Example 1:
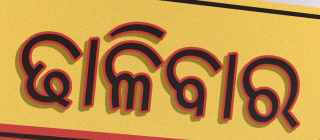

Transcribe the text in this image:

ଢାଳିବାର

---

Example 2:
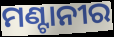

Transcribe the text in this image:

ମଣ୍ଟାନୀର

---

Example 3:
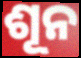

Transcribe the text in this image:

ଶୂନ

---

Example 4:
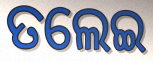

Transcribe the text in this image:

ତଲେଇ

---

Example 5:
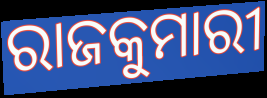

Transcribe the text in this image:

ରାଜକୁମାରୀ